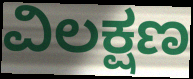
ವಿಲಕ್ಷಣ